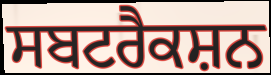
ਸਬਟਰੈਕਸ਼ਨ